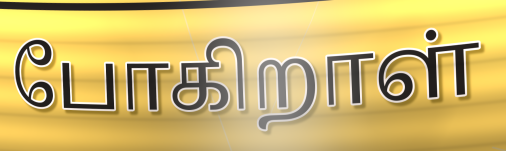
போகிறாள்